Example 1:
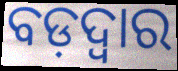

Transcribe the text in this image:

ବଡ଼ଦ୍ୱାର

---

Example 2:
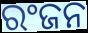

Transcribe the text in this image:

ରଂଜନ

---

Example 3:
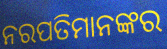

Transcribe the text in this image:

ନରପତିମାନଙ୍କର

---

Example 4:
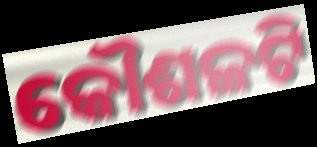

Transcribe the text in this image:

କୌଶଳଟି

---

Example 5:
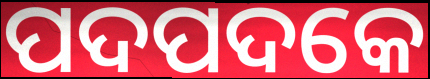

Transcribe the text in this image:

ପଦପଦକେ